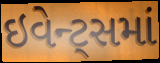
ઇવેન્ટ્સમાં